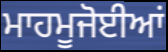
ਮਾਹਮੂਜੋਈਆਂ